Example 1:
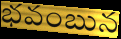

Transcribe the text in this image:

భవంబున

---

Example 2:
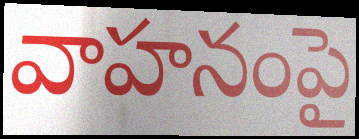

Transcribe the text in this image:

వాహనంపై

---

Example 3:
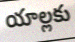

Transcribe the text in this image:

యాల్లకు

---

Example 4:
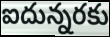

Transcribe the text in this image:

ఐదున్నరకు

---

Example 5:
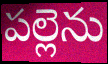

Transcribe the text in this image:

పల్లెను